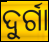
ଦୁର୍ଗା